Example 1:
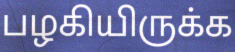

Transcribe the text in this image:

பழகியிருக்க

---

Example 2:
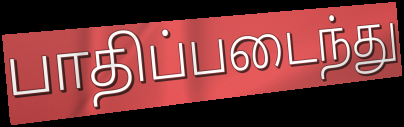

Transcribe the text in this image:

பாதிப்படைந்து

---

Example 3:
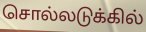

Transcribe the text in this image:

சொல்லடுக்கில்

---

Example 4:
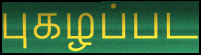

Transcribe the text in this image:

புகழப்பட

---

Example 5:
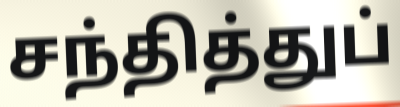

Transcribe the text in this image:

சந்தித்துப்